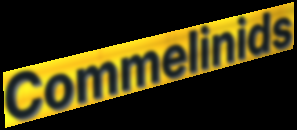
Commelinids